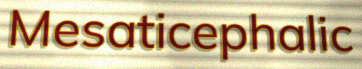
Mesaticephalic